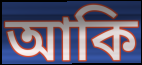
আকি